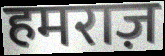
हमराज़